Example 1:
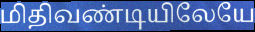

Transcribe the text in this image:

மிதிவண்டியிலேயே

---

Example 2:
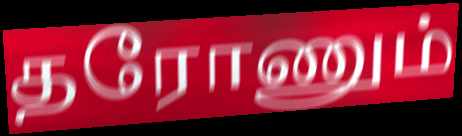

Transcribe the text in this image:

தரோணும்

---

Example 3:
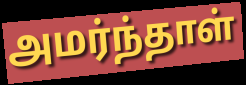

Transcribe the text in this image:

அமர்ந்தாள்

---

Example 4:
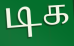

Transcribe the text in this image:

டிக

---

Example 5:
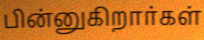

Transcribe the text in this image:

பின்னுகிறார்கள்